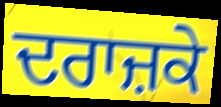
ਦਰਾਜ਼ਕੇ